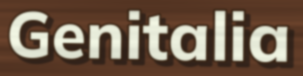
Genitalia